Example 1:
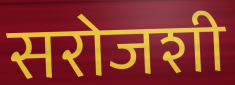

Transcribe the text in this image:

सरोजशी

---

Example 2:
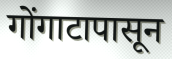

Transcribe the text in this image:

गोंगाटापासून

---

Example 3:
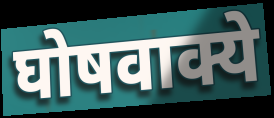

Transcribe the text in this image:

घोषवाक्ये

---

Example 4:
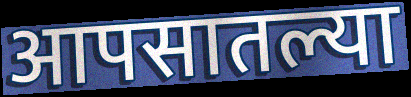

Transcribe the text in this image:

आपसातल्या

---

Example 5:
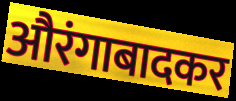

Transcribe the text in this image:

औरंगाबादकर